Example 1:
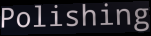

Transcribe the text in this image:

Polishing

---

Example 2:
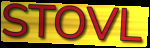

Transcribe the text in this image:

STOVL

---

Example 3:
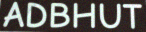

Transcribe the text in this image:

ADBHUT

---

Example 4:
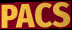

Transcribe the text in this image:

PACS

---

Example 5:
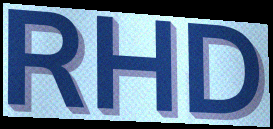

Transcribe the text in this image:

RHD